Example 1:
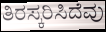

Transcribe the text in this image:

ತಿರಸ್ಕರಿಸಿದೆವು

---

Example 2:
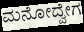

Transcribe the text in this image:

ಮನೋದ್ವೇಗ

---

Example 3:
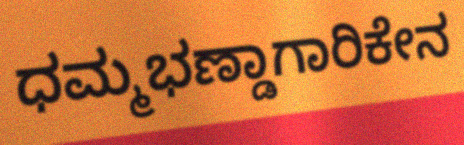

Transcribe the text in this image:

ಧಮ್ಮಭಣ್ಡಾಗಾರಿಕೇನ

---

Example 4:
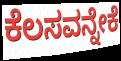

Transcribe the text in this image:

ಕೆಲಸವನ್ನೇಕೆ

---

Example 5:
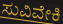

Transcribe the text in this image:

ಸುವಿವೇಕಿ